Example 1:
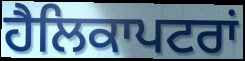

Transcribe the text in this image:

ਹੈਲਿਕਾਪਟਰਾਂ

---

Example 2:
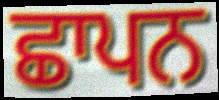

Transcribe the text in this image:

ਛਾਪਨ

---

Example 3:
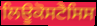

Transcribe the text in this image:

ਲਿਊਕੋਸਟੈਸਿਸ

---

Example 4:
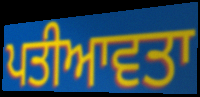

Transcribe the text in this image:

ਪਤੀਆਵਤਾ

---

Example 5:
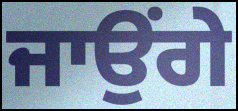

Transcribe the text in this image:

ਜਾਉਂਗੇ